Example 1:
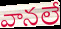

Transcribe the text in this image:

వానలే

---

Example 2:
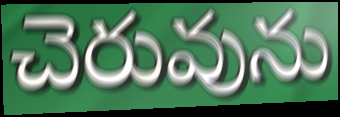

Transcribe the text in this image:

చెరువును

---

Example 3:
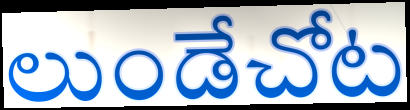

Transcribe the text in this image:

లుండేచోట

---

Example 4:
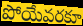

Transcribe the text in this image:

పోయేవరకూ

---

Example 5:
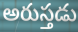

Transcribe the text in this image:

అరుస్తడు